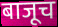
बाजूच